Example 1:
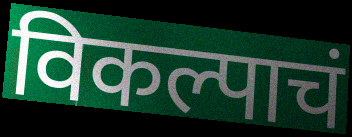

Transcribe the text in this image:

विकल्पाचं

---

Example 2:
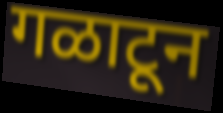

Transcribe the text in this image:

गळाटून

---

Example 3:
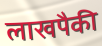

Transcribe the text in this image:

लाखपैकी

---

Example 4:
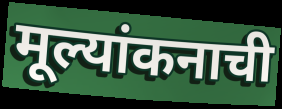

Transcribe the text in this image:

मूल्यांकनाची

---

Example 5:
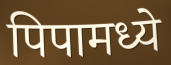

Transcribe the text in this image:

पिपामध्ये